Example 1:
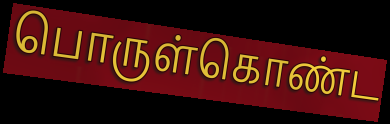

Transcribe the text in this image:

பொருள்கொண்ட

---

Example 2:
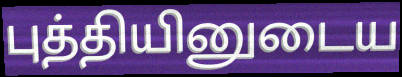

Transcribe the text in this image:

புத்தியினுடைய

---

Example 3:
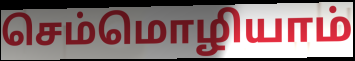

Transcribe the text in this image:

செம்மொழியாம்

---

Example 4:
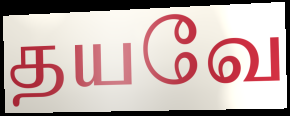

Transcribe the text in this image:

தயவே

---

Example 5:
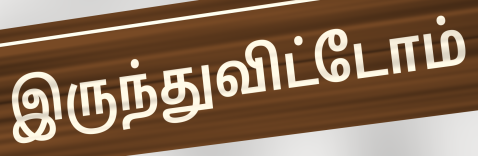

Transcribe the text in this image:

இருந்துவிட்டோம்